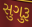
સુગુરૂ